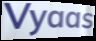
Vyaas